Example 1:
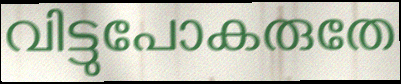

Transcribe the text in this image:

വിട്ടുപോകരുതേ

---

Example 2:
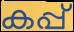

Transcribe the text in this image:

കപ്പ്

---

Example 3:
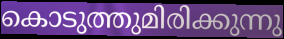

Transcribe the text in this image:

കൊടുത്തുമിരിക്കുന്നു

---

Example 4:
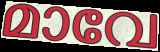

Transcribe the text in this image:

മാവേ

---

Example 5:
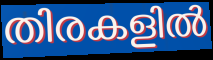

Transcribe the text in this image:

തിരകളിൽ